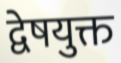
द्वेषयुक्त